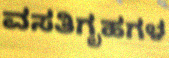
ವಸತಿಗೃಹಗಳ